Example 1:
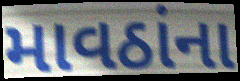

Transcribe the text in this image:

માવઠાંના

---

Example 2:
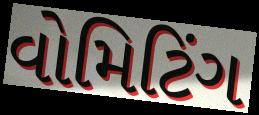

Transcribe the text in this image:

વોમિટિંગ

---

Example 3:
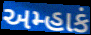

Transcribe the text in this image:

અમ્હાકં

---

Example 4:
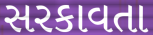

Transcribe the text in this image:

સરકાવતા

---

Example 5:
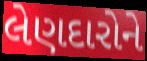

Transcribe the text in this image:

લેણદારોને